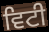
ਵਿਟੀ